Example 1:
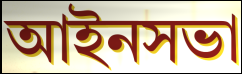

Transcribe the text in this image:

আইনসভা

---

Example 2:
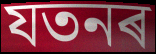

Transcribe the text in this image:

যতনৰ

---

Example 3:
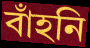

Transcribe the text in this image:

বাঁহনি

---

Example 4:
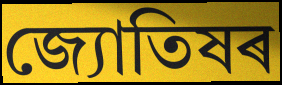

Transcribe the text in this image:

জ্যোতিষৰ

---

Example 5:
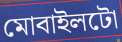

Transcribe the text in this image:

মোবাইলটো